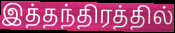
இத்தந்திரத்தில்